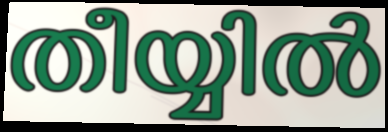
തീയ്യിൽ